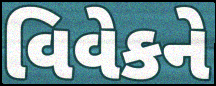
વિવેકને